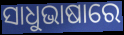
ସାଧୁଭାଷାରେ